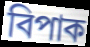
বিপাক